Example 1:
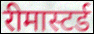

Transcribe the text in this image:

रीमास्टर्ड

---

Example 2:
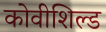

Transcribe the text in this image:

कोवीशिल्ड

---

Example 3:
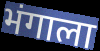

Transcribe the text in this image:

भंगाला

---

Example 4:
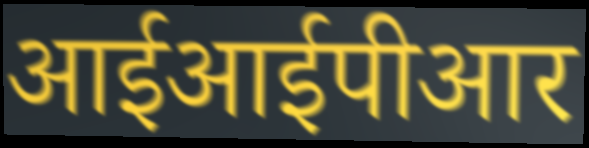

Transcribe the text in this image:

आईआईपीआर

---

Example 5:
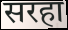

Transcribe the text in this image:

सरहा